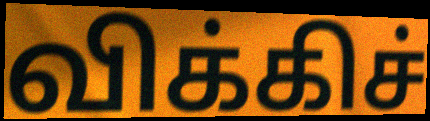
விக்கிச்